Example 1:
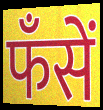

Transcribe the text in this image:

फँसें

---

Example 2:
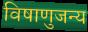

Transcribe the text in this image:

विषाणुजन्य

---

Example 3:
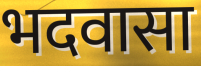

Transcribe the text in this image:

भदवासा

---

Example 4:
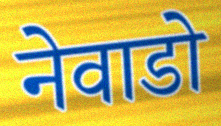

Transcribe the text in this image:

नेवाडो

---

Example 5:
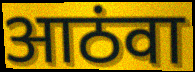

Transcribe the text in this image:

आठंवा